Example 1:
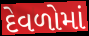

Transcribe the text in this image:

દેવળોમાં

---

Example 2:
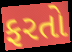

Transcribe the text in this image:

ફરતો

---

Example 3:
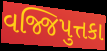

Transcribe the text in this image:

વજ્જિપુત્તકા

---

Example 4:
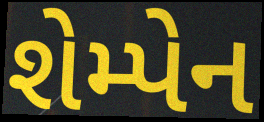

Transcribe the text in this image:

શેમ્પેન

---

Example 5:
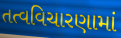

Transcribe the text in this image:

તત્વવિચારણામાં